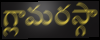
గ్లామరస్గా